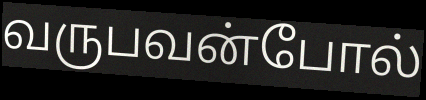
வருபவன்போல்